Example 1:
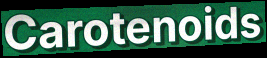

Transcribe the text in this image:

Carotenoids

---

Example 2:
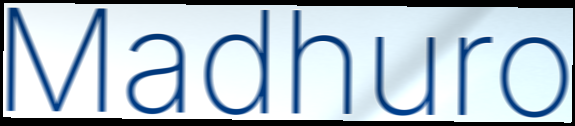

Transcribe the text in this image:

Madhuro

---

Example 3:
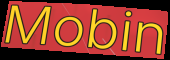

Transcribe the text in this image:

Mobin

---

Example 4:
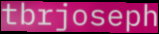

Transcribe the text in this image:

tbrjoseph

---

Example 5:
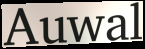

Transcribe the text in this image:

Auwal